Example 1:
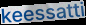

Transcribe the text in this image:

keessatti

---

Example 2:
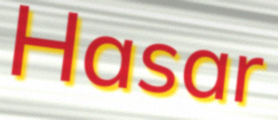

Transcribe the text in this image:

Hasar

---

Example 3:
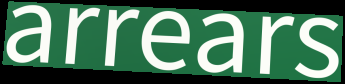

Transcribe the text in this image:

arrears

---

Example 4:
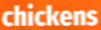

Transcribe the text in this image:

chickens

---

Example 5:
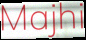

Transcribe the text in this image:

Majhi